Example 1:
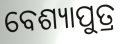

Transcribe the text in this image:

ବେଶ୍ୟାପୁତ୍ର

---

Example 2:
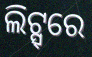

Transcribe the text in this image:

ଲିଟ୍ସ୍‌ରେ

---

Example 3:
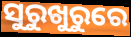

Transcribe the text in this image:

ସୁରୁଖୁରୁରେ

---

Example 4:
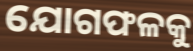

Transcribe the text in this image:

ଯୋଗଫଳକୁ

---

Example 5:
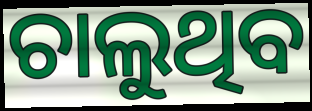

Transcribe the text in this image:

ଚାଲୁଥିବ